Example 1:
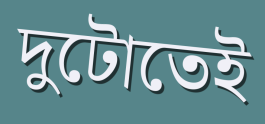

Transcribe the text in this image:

দুটোতেই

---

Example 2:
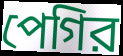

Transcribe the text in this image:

পেগির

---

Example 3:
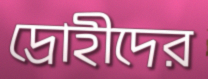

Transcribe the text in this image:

দ্রোহীদের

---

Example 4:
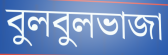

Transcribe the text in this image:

বুলবুলভাজা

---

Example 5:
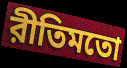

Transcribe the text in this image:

রীতিমতো